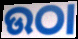
ଉଠା